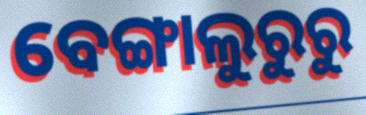
ବେଙ୍ଗାଲୁରୁରୁ